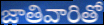
జాతివారితో